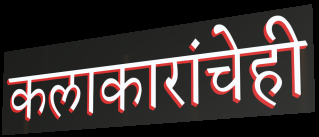
कलाकारांचेही